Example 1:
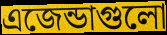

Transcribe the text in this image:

এজেন্ডাগুলো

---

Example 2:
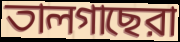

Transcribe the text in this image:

তালগাছেরা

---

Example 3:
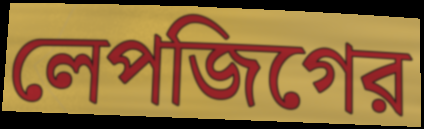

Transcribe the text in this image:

লেপজিগের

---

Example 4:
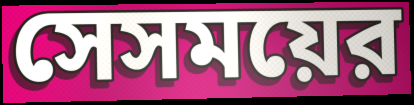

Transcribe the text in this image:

সেসময়ের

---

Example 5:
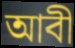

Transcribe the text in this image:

আবী